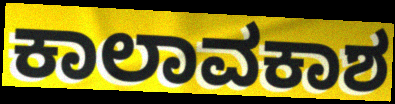
ಕಾಲಾವಕಾಶ